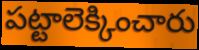
పట్టాలెక్కించారు